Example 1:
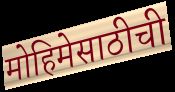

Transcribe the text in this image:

मोहिमेसाठीची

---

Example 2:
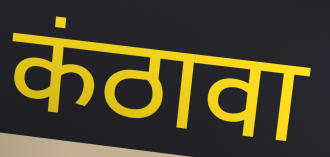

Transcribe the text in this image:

कंठावा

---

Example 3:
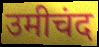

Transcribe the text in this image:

उमीचंद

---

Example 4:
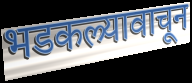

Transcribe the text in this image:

भडकल्यावाचून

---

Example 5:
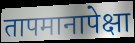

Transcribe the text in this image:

तापमानापेक्षा